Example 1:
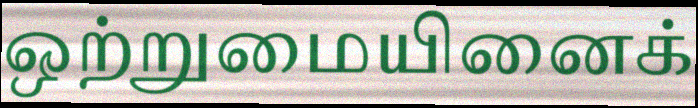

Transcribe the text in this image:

ஒற்றுமையினைக்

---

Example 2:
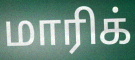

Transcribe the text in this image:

மாரிக்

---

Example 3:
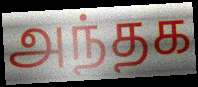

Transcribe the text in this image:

அந்தக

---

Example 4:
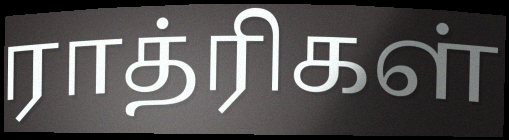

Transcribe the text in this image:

ராத்ரிகள்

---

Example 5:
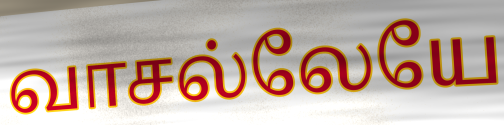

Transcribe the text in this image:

வாசல்லேயே